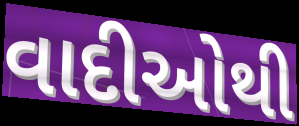
વાદીઓથી